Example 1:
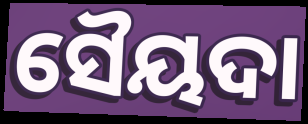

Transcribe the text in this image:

ସୈୟଦା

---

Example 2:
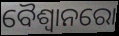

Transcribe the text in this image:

ବୈଶ୍ୱାନରୋ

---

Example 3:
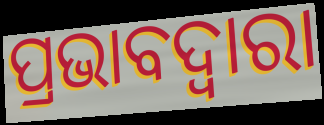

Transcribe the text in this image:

ପ୍ରଭାବଦ୍ୱାରା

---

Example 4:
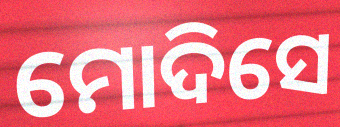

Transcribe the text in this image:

ମୋଦିସେ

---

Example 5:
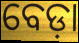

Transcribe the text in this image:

ବେଡ଼ା